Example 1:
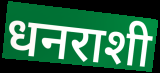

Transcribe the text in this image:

धनराशी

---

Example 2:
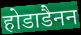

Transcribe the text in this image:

होडाडैनन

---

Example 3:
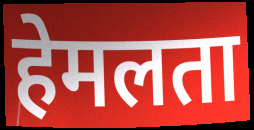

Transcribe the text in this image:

हेमलता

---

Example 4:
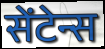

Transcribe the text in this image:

सेंटेन्स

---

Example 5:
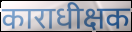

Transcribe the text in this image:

काराधीक्षक